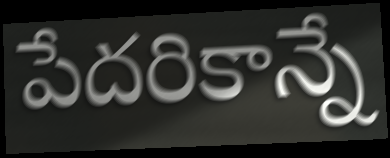
పేదరికాన్నే